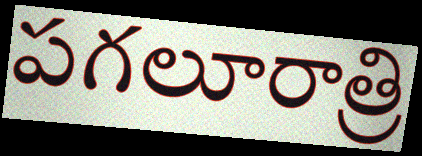
పగలూరాత్రి